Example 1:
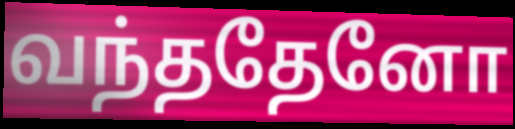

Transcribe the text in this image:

வந்ததேனோ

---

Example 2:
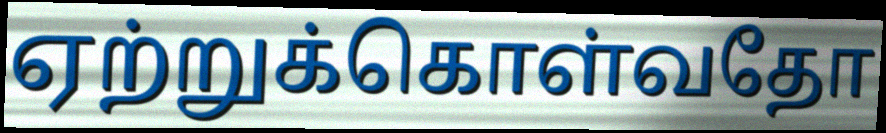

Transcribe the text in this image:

ஏற்றுக்கொள்வதோ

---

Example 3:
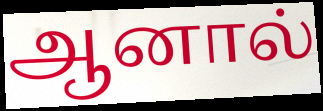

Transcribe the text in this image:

ஆனால்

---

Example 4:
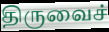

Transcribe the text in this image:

திருவைச்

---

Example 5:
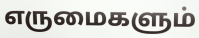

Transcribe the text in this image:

எருமைகளும்